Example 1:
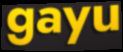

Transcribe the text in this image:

gayu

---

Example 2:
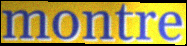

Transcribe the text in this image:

montre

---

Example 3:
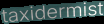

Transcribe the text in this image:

taxidermist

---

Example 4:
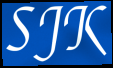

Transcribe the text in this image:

SJK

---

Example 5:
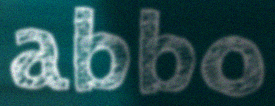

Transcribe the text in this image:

abbo